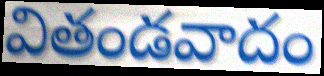
వితండవాదం